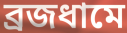
ব্রজধামে